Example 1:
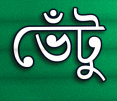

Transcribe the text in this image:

ভেঁটু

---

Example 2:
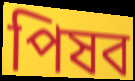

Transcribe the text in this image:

পিষব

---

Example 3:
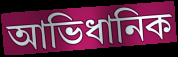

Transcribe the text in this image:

আভিধানিক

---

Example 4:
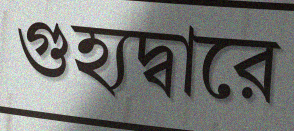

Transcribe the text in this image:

গুহ্যদ্বারে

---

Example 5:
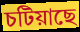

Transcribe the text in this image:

চটিয়াছে